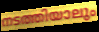
നടത്തിയാലും